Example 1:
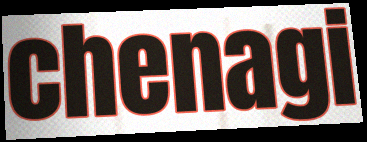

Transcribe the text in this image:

chenagi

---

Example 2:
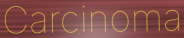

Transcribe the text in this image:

Carcinoma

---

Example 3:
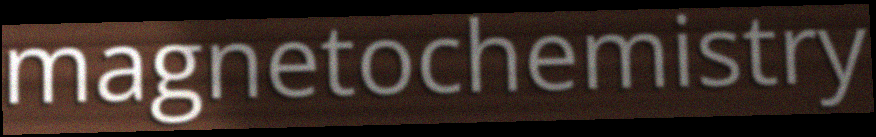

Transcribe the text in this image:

magnetochemistry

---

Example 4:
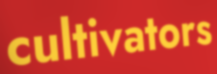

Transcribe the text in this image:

cultivators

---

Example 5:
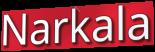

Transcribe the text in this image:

Narkala